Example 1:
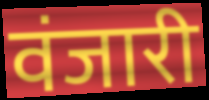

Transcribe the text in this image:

वंजारी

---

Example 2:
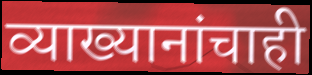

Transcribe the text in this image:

व्याख्यानांचाही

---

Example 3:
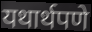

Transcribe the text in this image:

यथार्थपणे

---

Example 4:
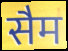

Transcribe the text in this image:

सैम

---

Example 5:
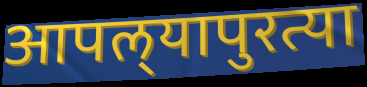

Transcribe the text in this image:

आपल्यापुरत्या